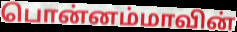
பொன்னம்மாவின்